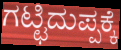
ಗಟ್ಟಿದುಪ್ಪಕ್ಕೆ